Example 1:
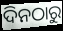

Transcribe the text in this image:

ଦିନଠାରୁ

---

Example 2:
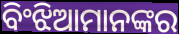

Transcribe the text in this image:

ବିଂଝିଆମାନଙ୍କର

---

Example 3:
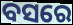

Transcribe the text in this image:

ବସରେ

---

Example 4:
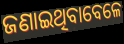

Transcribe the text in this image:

ଜଣାଇଥିବାବେଳେ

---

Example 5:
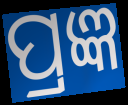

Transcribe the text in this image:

ପ୍ରଜ୍ଞ